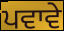
ਪਵਾਵੇ